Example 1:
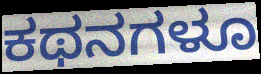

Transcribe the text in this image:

ಕಥನಗಳೂ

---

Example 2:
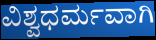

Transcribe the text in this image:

ವಿಶ್ವಧರ್ಮವಾಗಿ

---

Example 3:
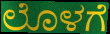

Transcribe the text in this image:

ಲೊಳಗೆ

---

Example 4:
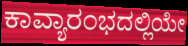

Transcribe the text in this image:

ಕಾವ್ಯಾರಂಭದಲ್ಲಿಯೇ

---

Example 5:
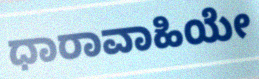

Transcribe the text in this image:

ಧಾರಾವಾಹಿಯೇ